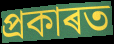
প্ৰকাৰত